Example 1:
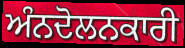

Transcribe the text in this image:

ਅੰਨਦੋਲਨਕਾਰੀ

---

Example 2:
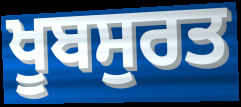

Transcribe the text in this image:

ਖੂਬਸੁਰਤ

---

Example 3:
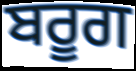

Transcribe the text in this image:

ਬਰੂਗ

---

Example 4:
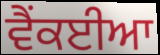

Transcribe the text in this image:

ਵੈਂਕਈਆ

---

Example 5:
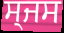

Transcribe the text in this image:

ਸ੍ਜਸ